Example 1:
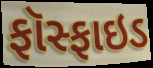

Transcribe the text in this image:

ફૉસ્ફાઇડ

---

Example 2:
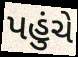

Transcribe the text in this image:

પહુંચે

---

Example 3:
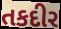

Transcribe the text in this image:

તકદીર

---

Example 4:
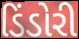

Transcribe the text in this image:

ડિંડોરી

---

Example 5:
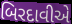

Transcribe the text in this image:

બિરદાવીએ